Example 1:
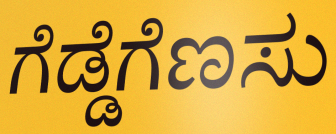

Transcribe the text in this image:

ಗೆಡ್ಡೆಗೆಣಸು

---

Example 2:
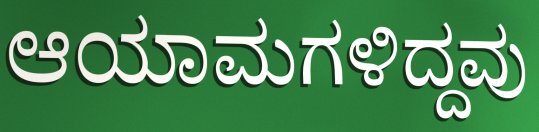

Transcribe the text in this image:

ಆಯಾಮಗಳಿದ್ದವು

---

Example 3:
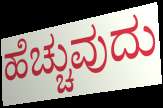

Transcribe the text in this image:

ಹೆಚ್ಚುವುದು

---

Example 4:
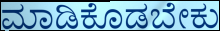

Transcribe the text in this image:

ಮಾಡಿಕೊಡಬೇಕು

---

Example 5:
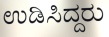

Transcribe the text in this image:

ಉಡಿಸಿದ್ದರು